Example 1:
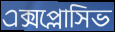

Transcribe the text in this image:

এক্সপ্লোসিভ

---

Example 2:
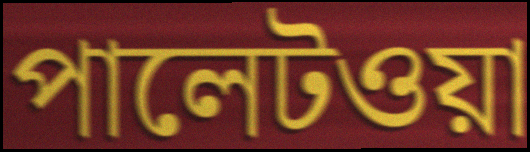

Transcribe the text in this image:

পালেটওয়া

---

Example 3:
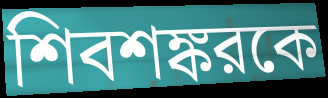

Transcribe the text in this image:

শিবশঙ্করকে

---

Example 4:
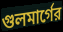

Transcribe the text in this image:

গুলমার্গের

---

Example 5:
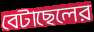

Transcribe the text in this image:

বেটাছেলের